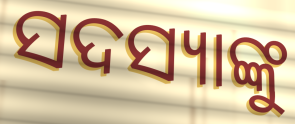
ସଦସ୍ୟାଙ୍କୁ